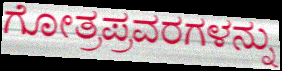
ಗೋತ್ರಪ್ರವರಗಳನ್ನು